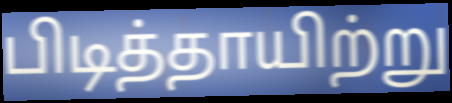
பிடித்தாயிற்று